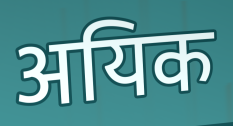
अयिक